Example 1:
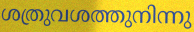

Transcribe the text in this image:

ശത്രുവശത്തുനിന്നു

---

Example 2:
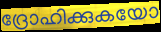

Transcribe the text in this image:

ദ്രോഹിക്കുകയോ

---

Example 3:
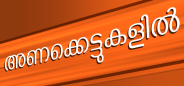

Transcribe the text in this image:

അണക്കെട്ടുകളിൽ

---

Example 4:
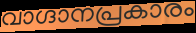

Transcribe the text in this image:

വാഗ്ദാനപ്രകാരം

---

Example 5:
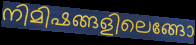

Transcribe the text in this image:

നിമിഷങ്ങളിലെങ്ങോ